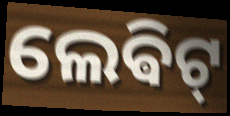
ଲେଵିଟ୍